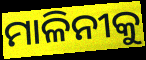
ମାଳିନୀକୁ